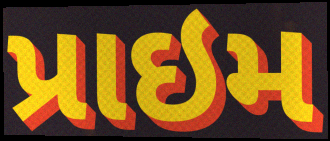
પ્રાઇમ